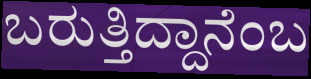
ಬರುತ್ತಿದ್ದಾನೆಂಬ